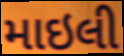
માઇલી